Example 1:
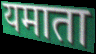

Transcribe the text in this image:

यमाता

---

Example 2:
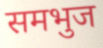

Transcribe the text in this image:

समभुज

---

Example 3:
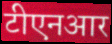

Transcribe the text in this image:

टीएनआर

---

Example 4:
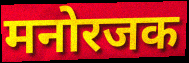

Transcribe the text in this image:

मनोरजक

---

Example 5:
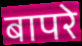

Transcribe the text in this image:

बापरे